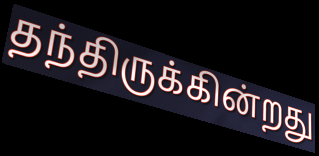
தந்திருக்கின்றது